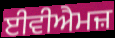
ਈਵੀਐਮਜ਼